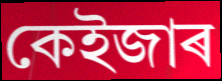
কেইজাৰ